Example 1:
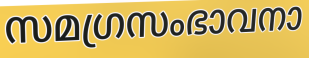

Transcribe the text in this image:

സമഗ്രസംഭാവനാ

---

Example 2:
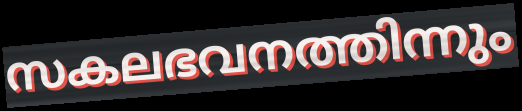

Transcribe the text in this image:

സകലഭവനത്തിന്നും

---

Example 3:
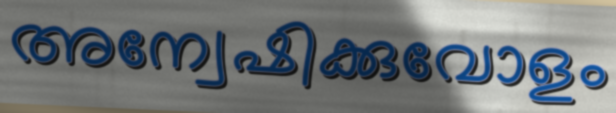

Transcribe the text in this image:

അന്വേഷിക്കുവോളം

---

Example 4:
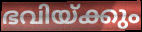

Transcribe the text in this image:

ഭവിയ്ക്കും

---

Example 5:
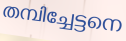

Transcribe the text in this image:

തമ്പിച്ചേട്ടനെ